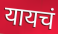
यायचं